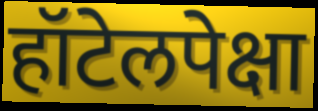
हॉटेलपेक्षा